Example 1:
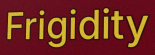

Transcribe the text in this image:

Frigidity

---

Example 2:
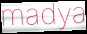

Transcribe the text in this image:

madya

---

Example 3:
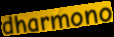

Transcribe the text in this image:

dharmono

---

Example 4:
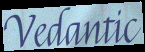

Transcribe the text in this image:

Vedantic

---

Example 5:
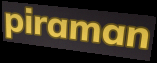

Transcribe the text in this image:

piraman